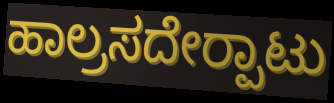
ಹಾಲ್ರಸದೇರ‍್ಪಾಟು